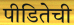
पीडितेची